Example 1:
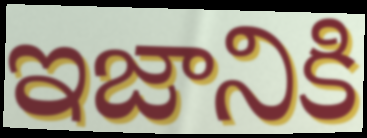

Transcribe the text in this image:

ఇజానికి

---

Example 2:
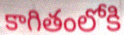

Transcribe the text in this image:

కాగితంలోకి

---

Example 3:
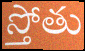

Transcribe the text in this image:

స్తోతు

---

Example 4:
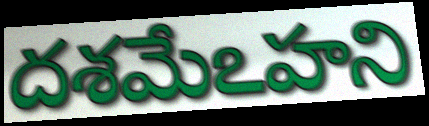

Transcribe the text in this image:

దశమేఽహని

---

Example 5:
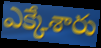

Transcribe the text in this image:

ఎక్కేశారు